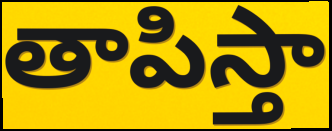
తాపిస్తా